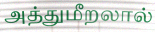
அத்துமீறலால்